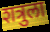
शत्रुला